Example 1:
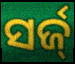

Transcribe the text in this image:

ସର୍ଜ୍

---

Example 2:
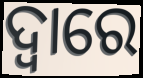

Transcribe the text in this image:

ଦ୍ବାରେ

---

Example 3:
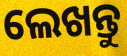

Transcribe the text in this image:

ଲେଖନ୍ତୁ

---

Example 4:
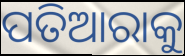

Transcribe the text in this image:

ପତିଆରାକୁ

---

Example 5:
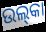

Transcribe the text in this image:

ଉଲ୍‍କା